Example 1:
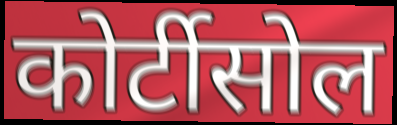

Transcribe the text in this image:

कोर्टीसोल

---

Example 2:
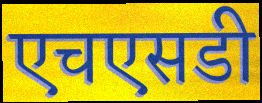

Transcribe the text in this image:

एचएसडी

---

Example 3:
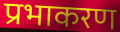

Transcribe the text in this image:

प्रभाकरण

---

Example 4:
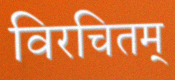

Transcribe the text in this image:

विरचितम्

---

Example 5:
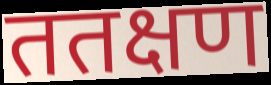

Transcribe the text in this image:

ततक्षण